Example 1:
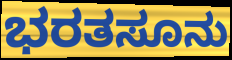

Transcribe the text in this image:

ಭರತಸೂನು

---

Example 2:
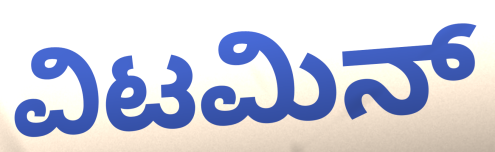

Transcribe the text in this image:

ವಿಟಮಿನ್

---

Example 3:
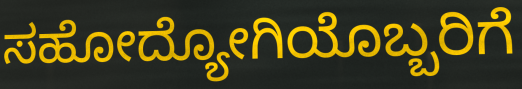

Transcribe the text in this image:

ಸಹೋದ್ಯೋಗಿಯೊಬ್ಬರಿಗೆ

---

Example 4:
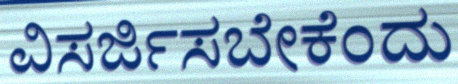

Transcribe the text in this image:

ವಿಸರ್ಜಿಸಬೇಕೆಂದು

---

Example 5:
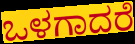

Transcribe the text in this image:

ಒಳಗಾದರೆ